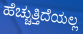
ಹೆಚ್ಚುತ್ತಿದೆಯಲ್ಲ